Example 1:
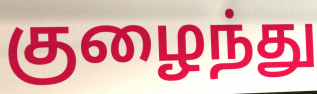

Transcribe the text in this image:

குழைந்து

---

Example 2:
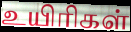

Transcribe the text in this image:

உயிரிகள்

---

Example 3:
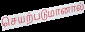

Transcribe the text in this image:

செயற்படுமானால்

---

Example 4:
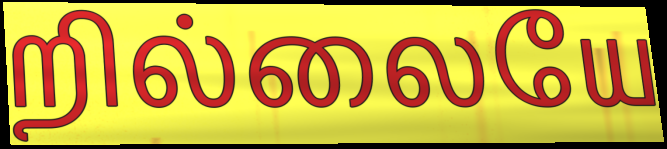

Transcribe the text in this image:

றில்லையே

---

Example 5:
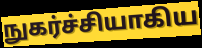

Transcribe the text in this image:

நுகர்ச்சியாகிய